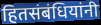
हितसंबंधियांनी